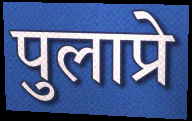
पुलाप्रे